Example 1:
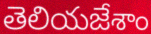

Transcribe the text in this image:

తెలియజేశాం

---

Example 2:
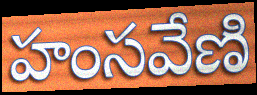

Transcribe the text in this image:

హంసవేణి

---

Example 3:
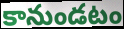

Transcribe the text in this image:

కానుండటం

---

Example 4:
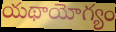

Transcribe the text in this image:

యథాయోగ్యం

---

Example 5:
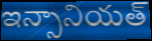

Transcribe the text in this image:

ఇన్సానియత్